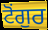
ਟੋਂਗੁਰ